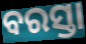
ବରସ୍ତା